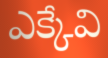
ఎక్కేవి